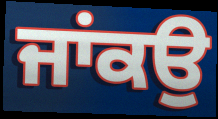
ਜਾਂਕਉ